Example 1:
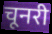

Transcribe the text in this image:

चूनरी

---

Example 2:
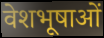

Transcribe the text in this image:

वेशभूषाओं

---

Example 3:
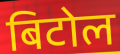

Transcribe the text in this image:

बिटोल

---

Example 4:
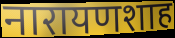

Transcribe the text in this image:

नारायणशाह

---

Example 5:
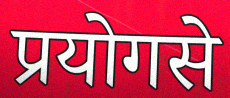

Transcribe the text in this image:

प्रयोगसे